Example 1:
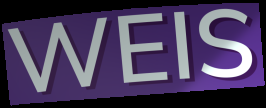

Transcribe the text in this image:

WEIS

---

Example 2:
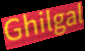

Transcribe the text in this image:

Ghilgal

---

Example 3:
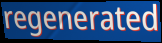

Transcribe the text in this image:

regenerated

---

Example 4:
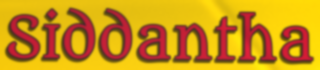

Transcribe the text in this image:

Siddantha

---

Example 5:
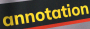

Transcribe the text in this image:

annotation